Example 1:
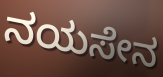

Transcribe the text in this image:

ನಯಸೇನ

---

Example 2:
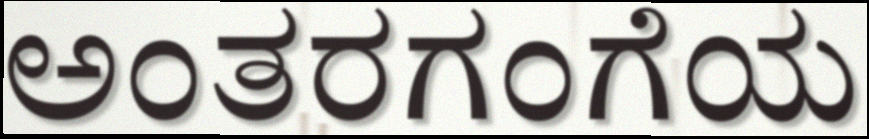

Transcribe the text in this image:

ಅಂತರಗಂಗೆಯ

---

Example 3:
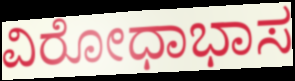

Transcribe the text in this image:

ವಿರೋಧಾಭಾಸ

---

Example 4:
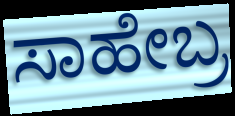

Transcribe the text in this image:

ಸಾಹೇಬ್ರ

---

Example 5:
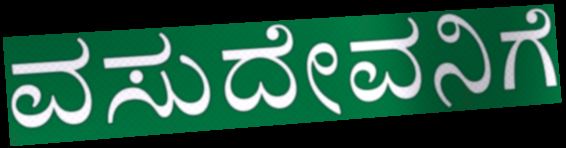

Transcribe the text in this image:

ವಸುದೇವನಿಗೆ